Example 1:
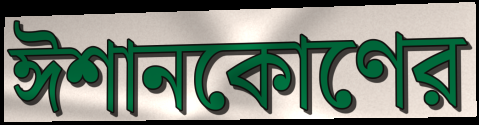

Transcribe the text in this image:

ঈশানকোণের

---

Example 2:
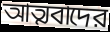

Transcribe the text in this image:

আত্মবাদের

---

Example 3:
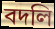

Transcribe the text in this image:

বদলি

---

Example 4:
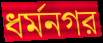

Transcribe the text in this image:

ধর্মনগর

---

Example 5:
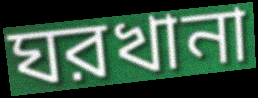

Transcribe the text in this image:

ঘরখানা